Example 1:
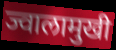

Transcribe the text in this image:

ज्वालामुखी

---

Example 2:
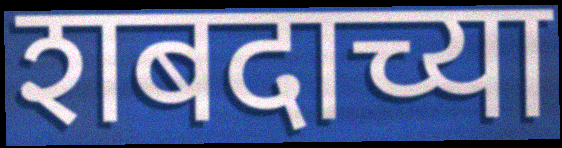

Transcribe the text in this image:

शबदाच्या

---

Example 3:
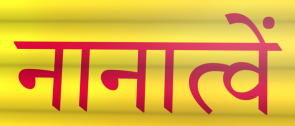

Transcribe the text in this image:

नानात्वें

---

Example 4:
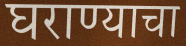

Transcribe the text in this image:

घराण्याचा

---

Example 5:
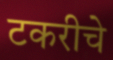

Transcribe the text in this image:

टकरीचे